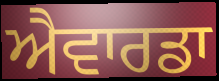
ਐਵਾਰਡਾ